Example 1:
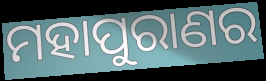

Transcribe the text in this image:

ମହାପୁରାଣର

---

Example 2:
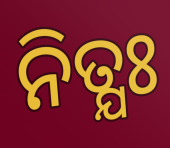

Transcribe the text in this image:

ନିତ୍ଯଃ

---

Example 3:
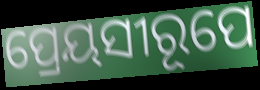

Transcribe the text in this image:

ପ୍ରେୟସୀରୂପେ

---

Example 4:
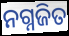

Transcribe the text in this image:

ନଗ୍ନଜିତ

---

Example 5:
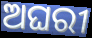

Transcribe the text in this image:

ଅଘରୀ